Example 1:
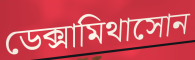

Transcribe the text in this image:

ডেক্সামিথাসোন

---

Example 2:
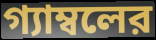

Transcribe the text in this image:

গ্যাম্বলের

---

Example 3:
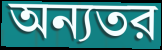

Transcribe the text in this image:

অন্যতর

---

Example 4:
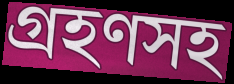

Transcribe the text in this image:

গ্রহণসহ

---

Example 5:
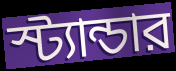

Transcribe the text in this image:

স্ট্যান্ডার